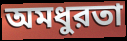
অমধুরতা